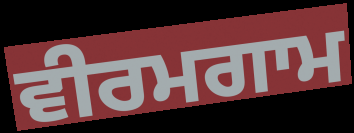
ਵੀਰਮਗਾਮ